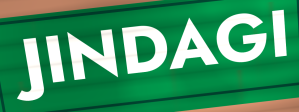
JINDAGI